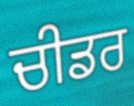
ਚੀਡਰ